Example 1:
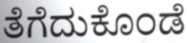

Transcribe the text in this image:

ತೆಗೆದುಕೊಂಡೆ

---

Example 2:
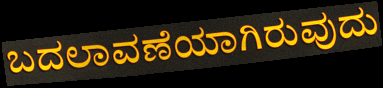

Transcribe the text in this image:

ಬದಲಾವಣೆಯಾಗಿರುವುದು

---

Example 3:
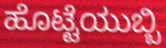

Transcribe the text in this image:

ಹೊಟ್ಟೆಯುಬ್ಬಿ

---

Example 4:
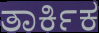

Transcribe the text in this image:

ತಾರ್ಕಿಕ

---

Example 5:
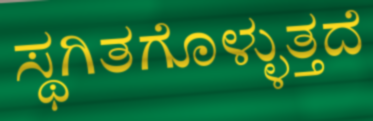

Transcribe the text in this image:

ಸ್ಥಗಿತಗೊಳ್ಳುತ್ತದೆ